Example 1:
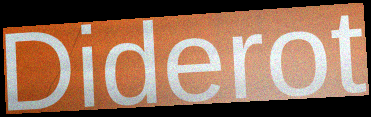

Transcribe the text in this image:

Diderot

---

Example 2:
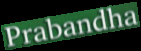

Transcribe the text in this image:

Prabandha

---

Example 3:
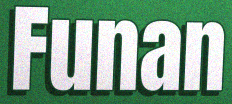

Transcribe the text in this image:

Funan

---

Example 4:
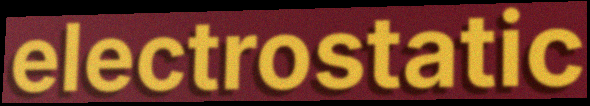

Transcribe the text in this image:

electrostatic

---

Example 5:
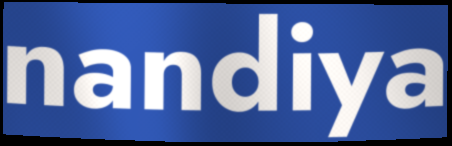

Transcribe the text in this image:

nandiya